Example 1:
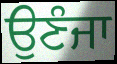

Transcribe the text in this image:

ਉਣੰਜਾ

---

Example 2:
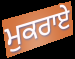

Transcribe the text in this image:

ਮੁਕਰਾਏ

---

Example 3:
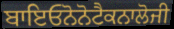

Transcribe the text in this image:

ਬਾਇਓਨੋਨੋਟੈਕਨਾਲੋਜੀ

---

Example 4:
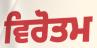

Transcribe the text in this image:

ਵਿਰੋਤਮ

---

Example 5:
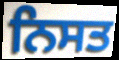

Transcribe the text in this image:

ਨਿਸਤ